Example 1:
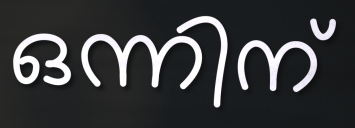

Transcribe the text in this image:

ഒന്നിന്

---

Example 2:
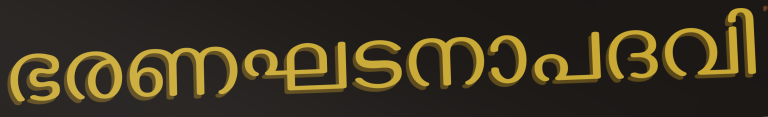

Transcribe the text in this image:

ഭരണഘടനാപദവി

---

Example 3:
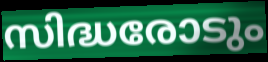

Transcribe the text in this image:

സിദ്ധരോടും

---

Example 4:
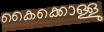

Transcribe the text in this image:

കൈക്കൊള്ളു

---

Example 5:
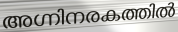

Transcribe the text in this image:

അഗ്നിനരകത്തിൽ